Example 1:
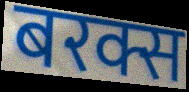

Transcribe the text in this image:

बरक्स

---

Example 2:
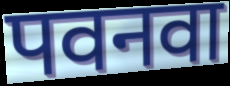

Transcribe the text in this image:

पवनवा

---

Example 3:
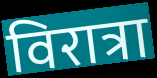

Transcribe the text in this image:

विरात्रा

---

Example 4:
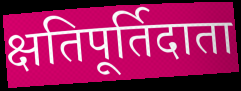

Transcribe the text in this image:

क्षतिपूर्तिदाता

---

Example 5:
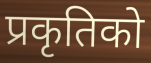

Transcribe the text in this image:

प्रकृतिको